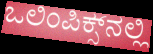
ಒಲಿಂಪಿಕ್ಸ್‌ನಲ್ಲಿ